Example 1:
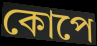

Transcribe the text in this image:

কোপে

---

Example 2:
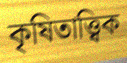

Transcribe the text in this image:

কৃষিতাত্ত্বিক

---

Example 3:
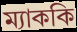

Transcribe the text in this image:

ম্যাককি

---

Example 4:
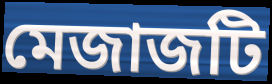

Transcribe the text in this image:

মেজাজটি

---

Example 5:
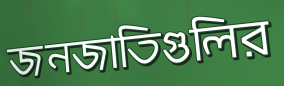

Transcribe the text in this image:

জনজাতিগুলির